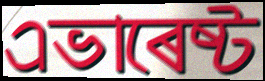
এভাৰেষ্ট